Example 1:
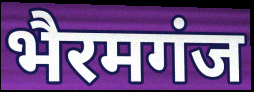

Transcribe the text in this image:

भैरमगंज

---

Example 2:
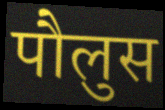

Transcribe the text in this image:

पौलुस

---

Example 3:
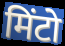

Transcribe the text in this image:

मिंटो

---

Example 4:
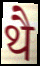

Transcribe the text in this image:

थै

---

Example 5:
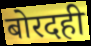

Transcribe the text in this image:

बोरदही